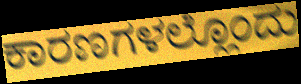
ಕಾರಣಗಳಲ್ಲೊಂದು